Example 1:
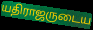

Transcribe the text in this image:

யதிராஜருடைய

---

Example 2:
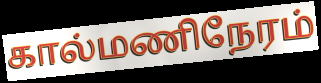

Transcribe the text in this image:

கால்மணிநேரம்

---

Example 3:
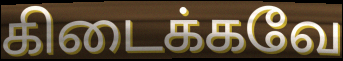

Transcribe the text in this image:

கிடைக்கவே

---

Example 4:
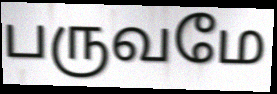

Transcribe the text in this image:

பருவமே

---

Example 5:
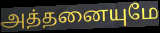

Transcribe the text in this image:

அத்தனையுமே